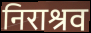
निराश्रव